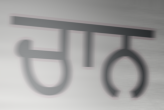
ਚਾਨ